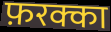
फ़रक्का